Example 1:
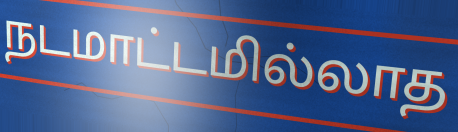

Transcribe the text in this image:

நடமாட்டமில்லாத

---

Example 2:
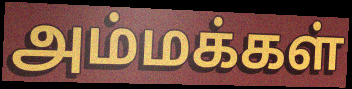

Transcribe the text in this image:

அம்மக்கள்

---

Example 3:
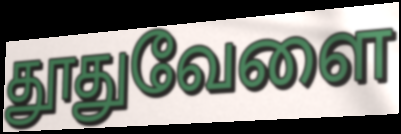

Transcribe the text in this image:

தூதுவேளை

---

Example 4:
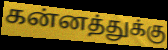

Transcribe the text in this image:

கன்னத்துக்கு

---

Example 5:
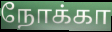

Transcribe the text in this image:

நோக்கா